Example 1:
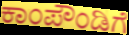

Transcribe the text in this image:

ಕಾಂಪೌಂಡಿಗೆ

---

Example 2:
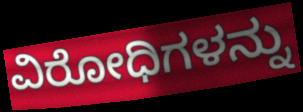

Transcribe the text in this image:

ವಿರೋಧಿಗಳನ್ನು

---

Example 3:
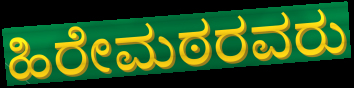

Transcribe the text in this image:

ಹಿರೇಮಠರವರು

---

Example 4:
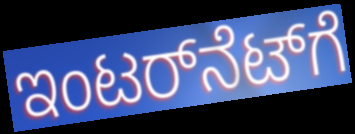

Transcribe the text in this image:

ಇಂಟರ್‌ನೆಟ್‌ಗೆ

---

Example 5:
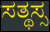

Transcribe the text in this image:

ಸತ್ಥಸ್ಸ